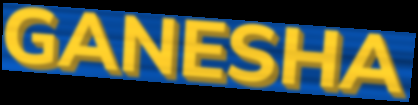
GANESHA